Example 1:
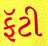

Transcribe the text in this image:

ફૅટી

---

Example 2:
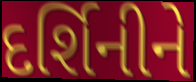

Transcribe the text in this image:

દર્શિનીને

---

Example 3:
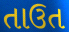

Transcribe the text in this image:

તાઉત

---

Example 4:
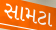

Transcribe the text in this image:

સામટા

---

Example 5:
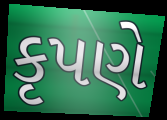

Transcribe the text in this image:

કૃપણે